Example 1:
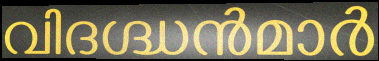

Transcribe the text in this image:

വിദഗ്ദ്ധൻമാർ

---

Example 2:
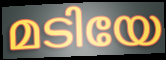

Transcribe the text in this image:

മടിയേ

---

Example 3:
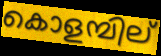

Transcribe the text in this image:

കൊളമ്പില്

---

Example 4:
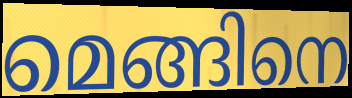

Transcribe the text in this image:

മെങ്ങിനെ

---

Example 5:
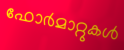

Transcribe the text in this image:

ഫോർമാറ്റുകൾ